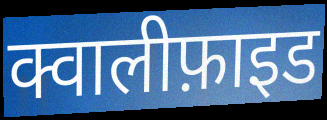
क्वालीफ़ाइड